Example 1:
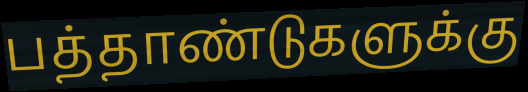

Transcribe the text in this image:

பத்தாண்டுகளுக்கு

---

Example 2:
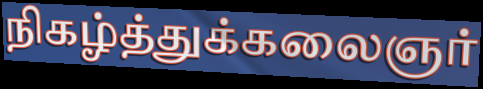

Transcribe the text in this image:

நிகழ்த்துக்கலைஞர்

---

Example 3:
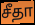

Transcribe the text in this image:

சீதா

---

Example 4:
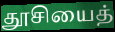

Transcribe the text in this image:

தூசியைத்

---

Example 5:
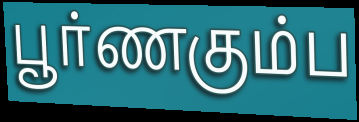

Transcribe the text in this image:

பூர்ணகும்ப